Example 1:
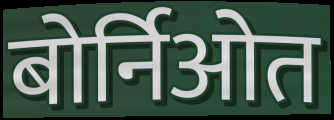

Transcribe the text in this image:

बोर्निओत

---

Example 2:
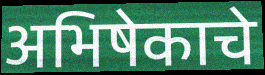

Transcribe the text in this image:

अभिषेकाचे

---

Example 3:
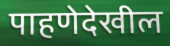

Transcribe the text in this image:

पाहणेदेखील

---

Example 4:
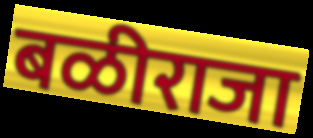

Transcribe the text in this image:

बळीराजा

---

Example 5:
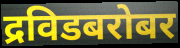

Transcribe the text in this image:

द्रविडबरोबर